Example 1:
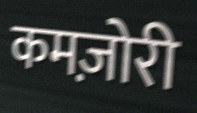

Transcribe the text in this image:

कमज़ोरी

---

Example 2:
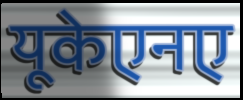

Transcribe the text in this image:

यूकेएनए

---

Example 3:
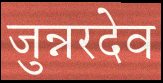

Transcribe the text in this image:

जुन्नरदेव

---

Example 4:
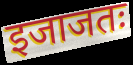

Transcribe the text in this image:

इजाजतः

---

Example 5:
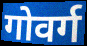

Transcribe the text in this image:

गोवर्ग